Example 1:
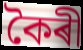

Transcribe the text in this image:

কৈৰী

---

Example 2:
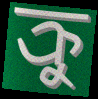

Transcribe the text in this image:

ক্ৰু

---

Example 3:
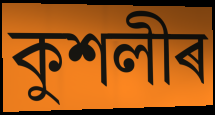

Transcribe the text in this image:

কুশলীৰ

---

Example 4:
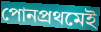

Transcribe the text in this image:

পোনপ্ৰথমেই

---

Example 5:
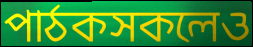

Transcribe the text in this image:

পাঠকসকলেও